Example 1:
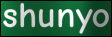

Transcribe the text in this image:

shunyo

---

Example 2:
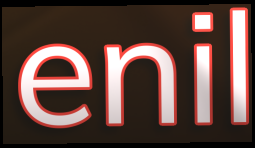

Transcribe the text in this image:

enil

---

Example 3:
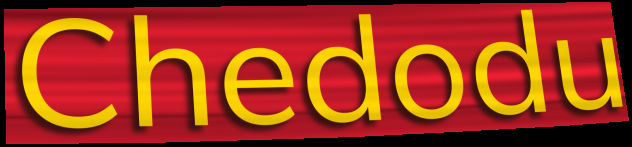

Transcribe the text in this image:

Chedodu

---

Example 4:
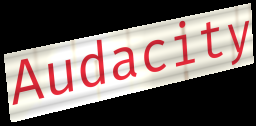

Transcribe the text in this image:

Audacity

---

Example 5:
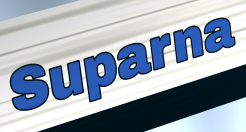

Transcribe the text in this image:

Suparna